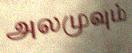
அலமுவும்